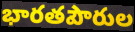
భారతపౌరుల